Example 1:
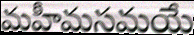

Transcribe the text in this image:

మహీమసమయే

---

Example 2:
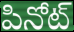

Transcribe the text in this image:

పినోట్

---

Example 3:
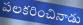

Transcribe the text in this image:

పలకరించినాడు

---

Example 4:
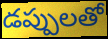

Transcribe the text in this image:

డప్పులతో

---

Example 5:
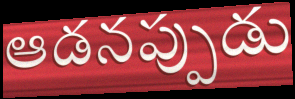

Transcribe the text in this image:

ఆడనప్పుడు